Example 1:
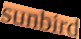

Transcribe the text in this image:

sunbird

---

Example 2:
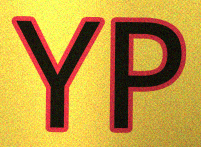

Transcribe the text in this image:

YP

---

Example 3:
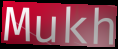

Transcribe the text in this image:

Mukh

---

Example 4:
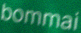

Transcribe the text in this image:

bommai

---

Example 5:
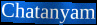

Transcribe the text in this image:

Chatanyam